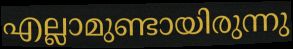
എല്ലാമുണ്ടായിരുന്നു